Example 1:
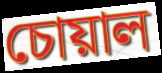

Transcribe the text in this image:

চোয়াল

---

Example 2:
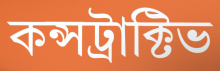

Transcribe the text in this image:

কন্সট্রাক্টিভ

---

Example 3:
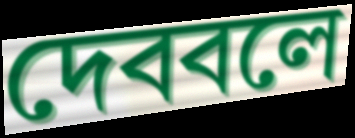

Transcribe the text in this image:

দেববলে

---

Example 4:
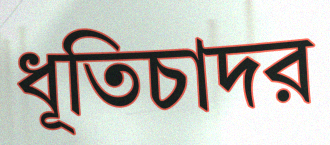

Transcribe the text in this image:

ধূতিচাদর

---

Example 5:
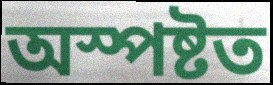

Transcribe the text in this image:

অস্পষ্টত